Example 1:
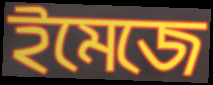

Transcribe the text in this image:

ইমেজে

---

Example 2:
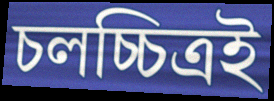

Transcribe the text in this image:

চলচ্চিত্ৰই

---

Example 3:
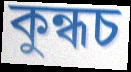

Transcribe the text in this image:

কুন্ধচ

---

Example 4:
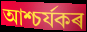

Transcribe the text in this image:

আশ্চৰ্যকৰ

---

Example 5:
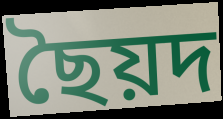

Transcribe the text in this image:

ছৈয়দ